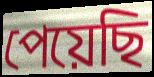
পেয়েছি